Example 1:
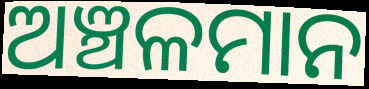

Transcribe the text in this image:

ଅଞ୍ଚଳମାନ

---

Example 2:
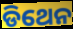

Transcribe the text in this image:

ଡିଥେନ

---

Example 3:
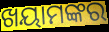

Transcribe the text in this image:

ଖୟାମଙ୍କର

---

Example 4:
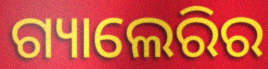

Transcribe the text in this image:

ଗ୍ୟାଲେରିର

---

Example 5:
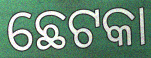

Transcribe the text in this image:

ଛେଟକା